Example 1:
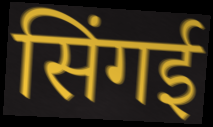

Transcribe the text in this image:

सिंगई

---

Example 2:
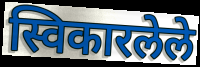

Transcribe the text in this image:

स्विकारलेले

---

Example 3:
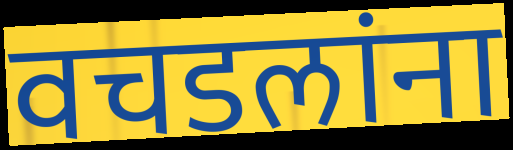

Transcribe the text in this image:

वचडलांना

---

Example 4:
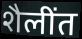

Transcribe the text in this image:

शैलींत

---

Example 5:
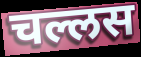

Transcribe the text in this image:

चल्लस